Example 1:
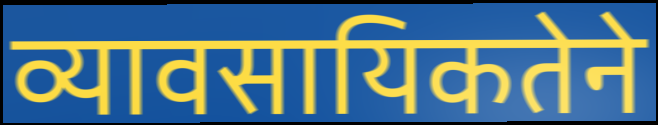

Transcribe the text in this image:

व्यावसायिकतेने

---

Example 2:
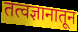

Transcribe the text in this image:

तत्वज्ञानातून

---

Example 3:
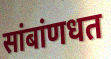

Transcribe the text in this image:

सांबांणधत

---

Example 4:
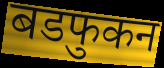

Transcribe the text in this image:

बडफुकन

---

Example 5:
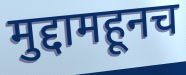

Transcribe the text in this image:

मुद्दामहूनच